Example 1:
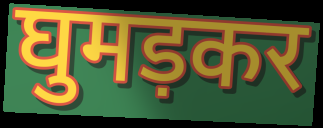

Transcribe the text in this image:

घुमड़कर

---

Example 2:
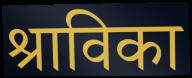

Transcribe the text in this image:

श्राविका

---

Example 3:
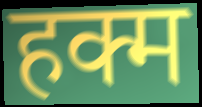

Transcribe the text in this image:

हक्म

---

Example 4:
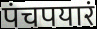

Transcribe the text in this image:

पंचपयारं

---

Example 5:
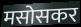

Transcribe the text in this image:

मसोसकर